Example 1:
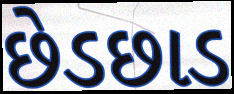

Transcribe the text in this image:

છેડછાડ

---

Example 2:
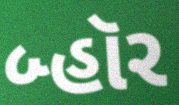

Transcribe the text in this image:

બ્હૉર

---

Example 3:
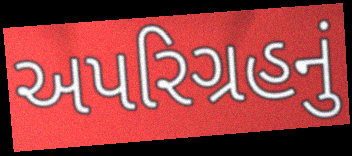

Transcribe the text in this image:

અપરિગ્રહનું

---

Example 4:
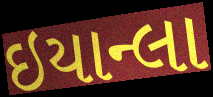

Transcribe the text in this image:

ઇયાન્લા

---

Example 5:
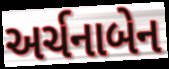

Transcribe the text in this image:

અર્ચનાબેન